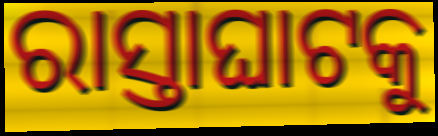
ରାସ୍ତାଘାଟକୁ